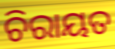
ଚିରାୟତ